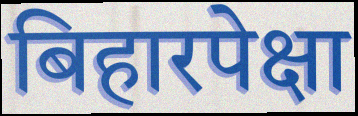
बिहारपेक्षा